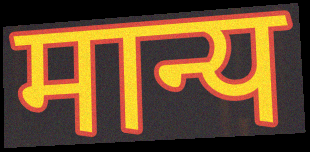
मान्य